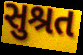
સુશ્રત